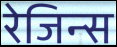
रेजिन्स